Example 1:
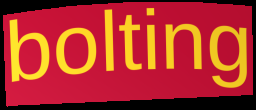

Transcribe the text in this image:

bolting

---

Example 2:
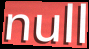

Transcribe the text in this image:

null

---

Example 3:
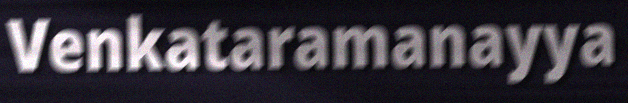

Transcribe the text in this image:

Venkataramanayya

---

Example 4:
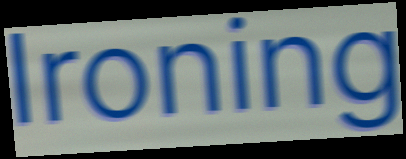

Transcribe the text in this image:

Ironing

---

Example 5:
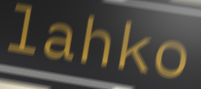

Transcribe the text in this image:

lahko